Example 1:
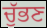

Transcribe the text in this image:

ਚੁੱਭਣ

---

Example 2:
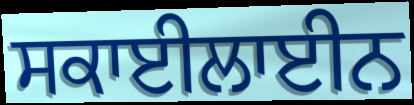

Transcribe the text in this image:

ਸਕਾਈਲਾਈਨ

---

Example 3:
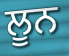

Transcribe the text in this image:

ਲੂਨ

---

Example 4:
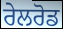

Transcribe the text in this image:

ਰੇਲਰੋਡ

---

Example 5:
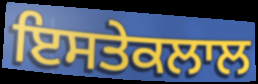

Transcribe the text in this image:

ਇਸਤੇਕਲਾਲ